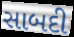
સાબદી